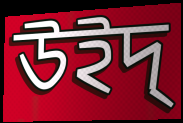
উইদ্